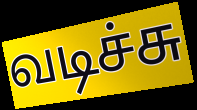
வடிச்சு